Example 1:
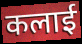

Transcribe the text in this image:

कलाई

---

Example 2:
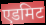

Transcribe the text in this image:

एडमिट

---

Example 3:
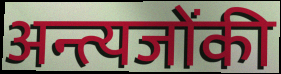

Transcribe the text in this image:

अन्त्यजोंकी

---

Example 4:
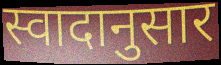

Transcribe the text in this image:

स्वादानुसार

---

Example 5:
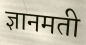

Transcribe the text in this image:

ज्ञानमती